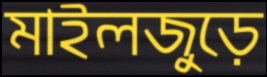
মাইলজুড়ে